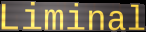
Liminal